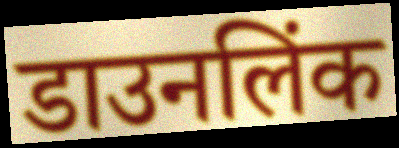
डाउनलिंक